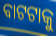
ବାଟଟାକୁ